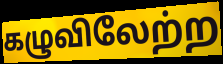
கழுவிலேற்ற